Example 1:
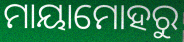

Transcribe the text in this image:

ମାୟାମୋହରୁ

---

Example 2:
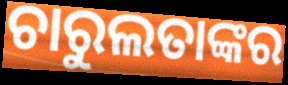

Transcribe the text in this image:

ଚାରୁଲତାଙ୍କର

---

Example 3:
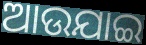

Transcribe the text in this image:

ଆଉଯାଇ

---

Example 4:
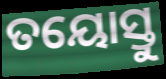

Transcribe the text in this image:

ତୟୋସ୍ତୁ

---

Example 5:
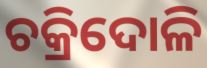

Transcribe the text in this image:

ଚକ୍ରିଦୋଳି